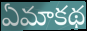
ఏమాకథ